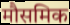
मौसमिक